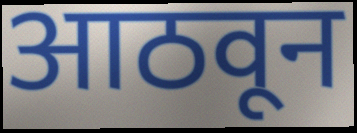
आठवून